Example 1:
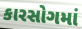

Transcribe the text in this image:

કારસોગમાં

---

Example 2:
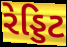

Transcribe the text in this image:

રેડ્ડિટ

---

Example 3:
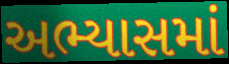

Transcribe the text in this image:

અભ્યાસમાં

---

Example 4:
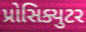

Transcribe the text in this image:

પ્રોસિક્યુટર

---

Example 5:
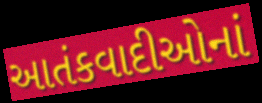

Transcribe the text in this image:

આતંકવાદીઓનાં